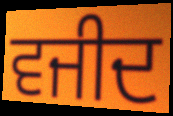
ਵਜੀਦ